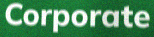
Corporate